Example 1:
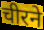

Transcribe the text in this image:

चीरने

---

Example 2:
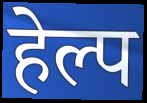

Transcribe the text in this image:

हेल्प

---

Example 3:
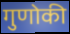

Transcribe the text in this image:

गुणोकी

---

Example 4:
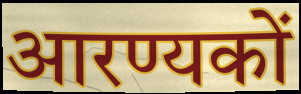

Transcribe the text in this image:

आरण्यकों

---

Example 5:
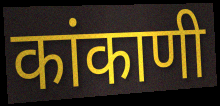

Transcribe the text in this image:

कांकाणी